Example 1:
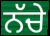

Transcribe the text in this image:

ਨੱਚੇ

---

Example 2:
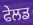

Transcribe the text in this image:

ਫੇਲਡ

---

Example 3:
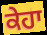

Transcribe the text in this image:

ਕੇਹਾ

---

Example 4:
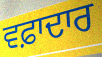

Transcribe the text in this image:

ਵਫ਼ਾਦਾਰ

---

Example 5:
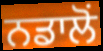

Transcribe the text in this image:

ਨਡਾਲੋਂ